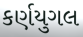
કર્ણયુગલ